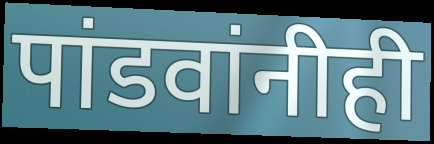
पांडवांनीही